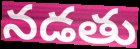
నడతు